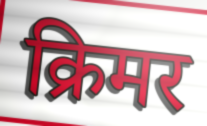
क्रिमर